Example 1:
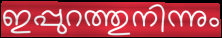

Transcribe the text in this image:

ഇപ്പുറത്തുനിന്നും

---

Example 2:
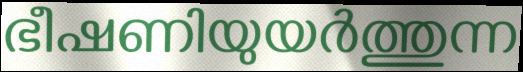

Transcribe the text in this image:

ഭീഷണിയുയർത്തുന്ന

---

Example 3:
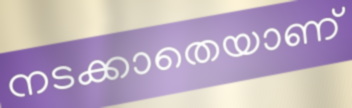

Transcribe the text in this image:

നടക്കാതെയാണ്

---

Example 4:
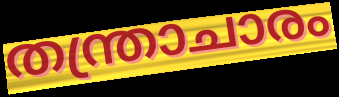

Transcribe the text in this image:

തന്ത്രാചാരം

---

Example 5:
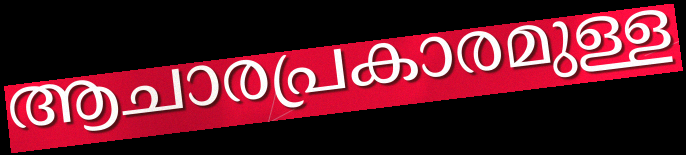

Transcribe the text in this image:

ആചാരപ്രകാരമുള്ള